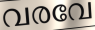
വരവേ